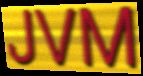
JVM